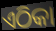
ଏଠିକା